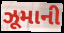
ઝૂમાની